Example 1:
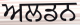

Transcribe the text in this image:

ਅਲਡਨ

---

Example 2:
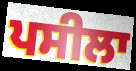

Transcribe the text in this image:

ਪਸੀਲਾ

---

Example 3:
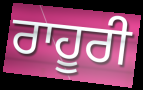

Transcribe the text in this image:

ਰਾਹੂਰੀ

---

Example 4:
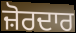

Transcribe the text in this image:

ਜ਼ੋਰਦਾਰ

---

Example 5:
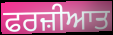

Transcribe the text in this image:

ਫਰਜ਼ੀਆਤ